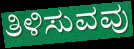
ತಿಳಿಸುವವು